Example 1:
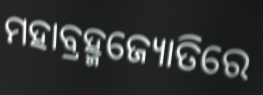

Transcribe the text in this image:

ମହାବ୍ରହ୍ମଜ୍ୟୋତିରେ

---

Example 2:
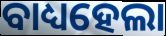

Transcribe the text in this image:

ବାଧ୍ୟହେଲା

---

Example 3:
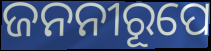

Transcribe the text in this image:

ଜନନୀରୂପେ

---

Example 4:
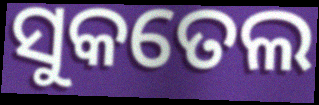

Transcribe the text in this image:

ସୁକତେଲ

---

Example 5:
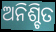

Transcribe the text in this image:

ଅନିଶ୍ଚିତ